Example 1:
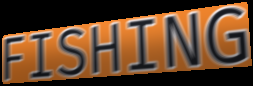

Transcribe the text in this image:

FISHING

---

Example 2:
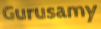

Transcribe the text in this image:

Gurusamy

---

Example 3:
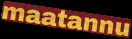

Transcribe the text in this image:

maatannu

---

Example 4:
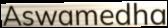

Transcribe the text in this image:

Aswamedha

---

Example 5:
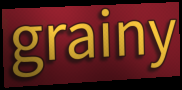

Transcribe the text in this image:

grainy